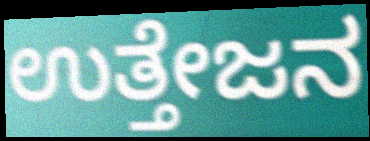
ಉತ್ತೇಜನ